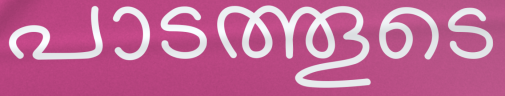
പാടത്തൂടെ